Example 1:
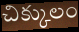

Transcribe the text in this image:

చిక్కులం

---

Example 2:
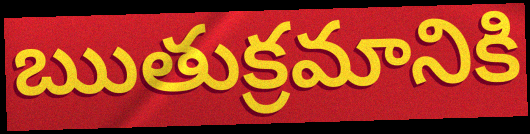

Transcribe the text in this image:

ఋతుక్రమానికి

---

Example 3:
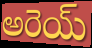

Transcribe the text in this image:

అరెయ్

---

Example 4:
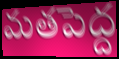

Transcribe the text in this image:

మతపెద్ద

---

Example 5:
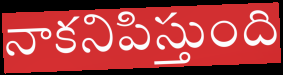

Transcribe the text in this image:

నాకనిపిస్తుంది